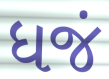
ધજં